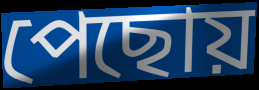
পেছোয়